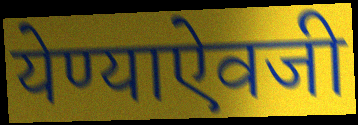
येण्याऐवजी